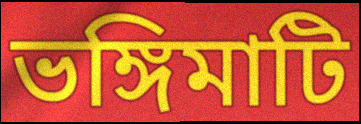
ভঙ্গিমাটি